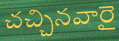
చచ్చినవారై